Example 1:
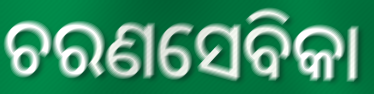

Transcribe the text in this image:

ଚରଣସେବିକା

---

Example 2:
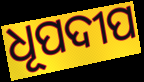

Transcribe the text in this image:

ଧୂପଦୀପ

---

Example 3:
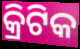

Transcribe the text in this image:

କ୍ରିଟିକ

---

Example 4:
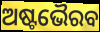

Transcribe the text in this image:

ଅଷ୍ଟଭୈରବ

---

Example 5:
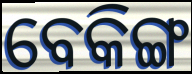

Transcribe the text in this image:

ବେକିଙ୍ଗ